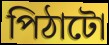
পিঠাটো